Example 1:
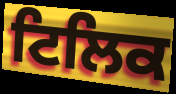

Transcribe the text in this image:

ਟਿਲਿਕ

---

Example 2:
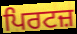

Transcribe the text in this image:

ਪਿਰਟਜ਼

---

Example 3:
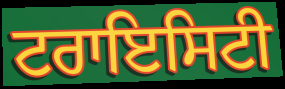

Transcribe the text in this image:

ਟਰਾਇਸਿਟੀ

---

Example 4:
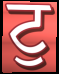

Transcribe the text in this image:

ਟੁ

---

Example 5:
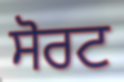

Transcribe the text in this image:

ਸੋਰਟ